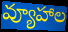
వ్యూహాల